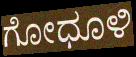
ಗೋಧೂಳಿ